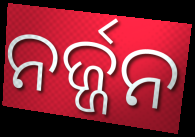
ନର୍ଜ୍ଜନ